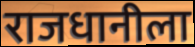
राजधानीला